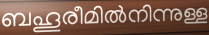
ബഹൂരീമിൽനിന്നുള്ള